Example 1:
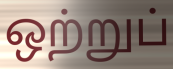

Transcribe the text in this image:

ஒற்றுப்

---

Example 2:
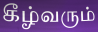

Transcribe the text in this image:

கீழ்வரும்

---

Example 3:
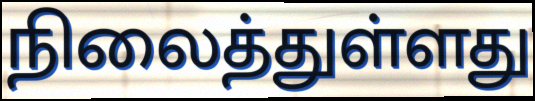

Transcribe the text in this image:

நிலைத்துள்ளது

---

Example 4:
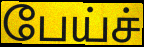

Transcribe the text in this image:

பேய்ச்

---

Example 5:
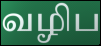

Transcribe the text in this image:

வழிப